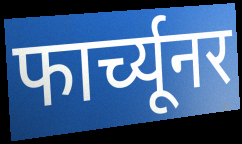
फार्च्यूनर